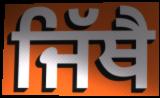
ਜਿੱਥੈ